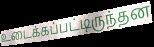
உடைக்கப்பட்டிருந்தன